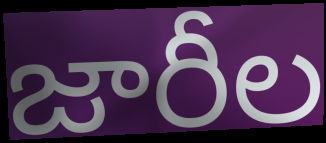
జారీల